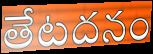
తేటదనం